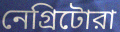
নেগ্রিটোরা